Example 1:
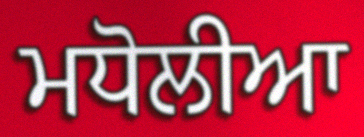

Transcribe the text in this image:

ਮਧੋਲੀਆ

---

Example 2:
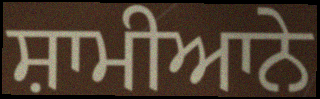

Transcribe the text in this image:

ਸ਼ਾਮੀਆਨੇ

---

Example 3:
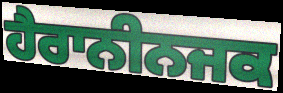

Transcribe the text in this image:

ਹੈਰਾਨੀਨਜਕ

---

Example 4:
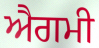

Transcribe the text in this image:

ਐਗਮੀ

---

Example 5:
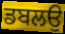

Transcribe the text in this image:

ਡਬਲਉ